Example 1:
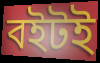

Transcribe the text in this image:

বইটই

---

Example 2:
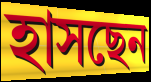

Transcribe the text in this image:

হাসছেন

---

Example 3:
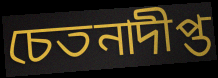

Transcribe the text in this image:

চেতনাদীপ্ত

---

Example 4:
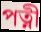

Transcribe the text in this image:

পত্নী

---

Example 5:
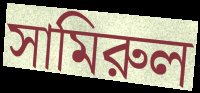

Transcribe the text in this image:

সামিরুল